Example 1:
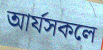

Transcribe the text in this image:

আৰ্যসকলে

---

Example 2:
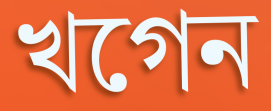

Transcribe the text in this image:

খগেন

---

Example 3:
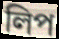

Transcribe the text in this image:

লিপ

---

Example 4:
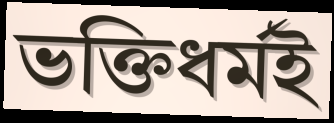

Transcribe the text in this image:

ভক্তিধৰ্মই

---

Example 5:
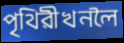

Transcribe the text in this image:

পৃথিৱীখনলৈ